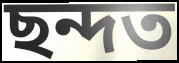
ছন্দত